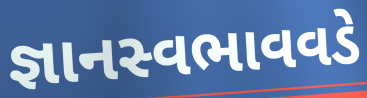
જ્ઞાનસ્વભાવવડે